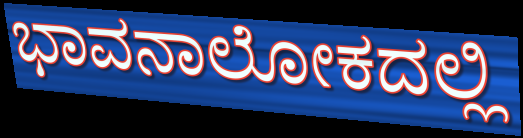
ಭಾವನಾಲೋಕದಲ್ಲಿ